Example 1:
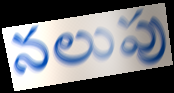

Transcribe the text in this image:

నలుపు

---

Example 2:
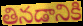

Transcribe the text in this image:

తినడానికి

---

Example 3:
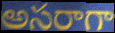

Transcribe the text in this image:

అసరాగా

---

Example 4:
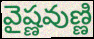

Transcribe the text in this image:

వైష్ణవుణ్ణి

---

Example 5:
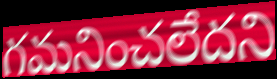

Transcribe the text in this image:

గమనించలేదని